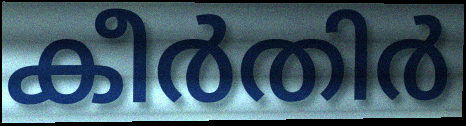
കീർതിർ